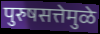
पुरुषसत्तेमुळे